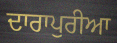
ਦਾਰਾਪੁਰੀਆ